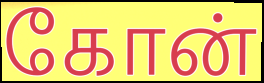
கோன்